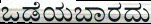
ಒಡೆಯಬಾರದು